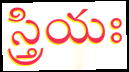
స్త్రియః